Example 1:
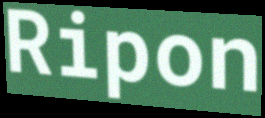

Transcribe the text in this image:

Ripon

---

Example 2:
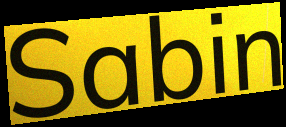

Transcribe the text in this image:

Sabin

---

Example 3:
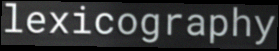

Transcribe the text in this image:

lexicography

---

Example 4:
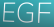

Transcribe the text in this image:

EGF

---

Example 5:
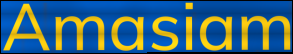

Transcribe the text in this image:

Amasiam